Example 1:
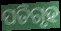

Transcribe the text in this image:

ପତିଗୃହ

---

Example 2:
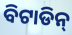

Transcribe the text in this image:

ବିଟାଡିନ୍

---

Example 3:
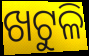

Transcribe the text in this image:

ଖଟୁଳି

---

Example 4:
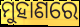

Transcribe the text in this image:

ମୁହାଣରେ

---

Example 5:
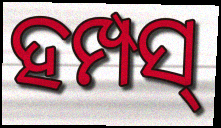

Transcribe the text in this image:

ହମ୍ପସ୍